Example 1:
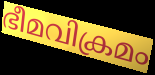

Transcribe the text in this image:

ഭീമവിക്രമം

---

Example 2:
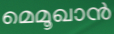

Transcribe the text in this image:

മെമൂഖാൻ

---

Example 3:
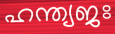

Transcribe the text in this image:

ഹന്ത്യജഃ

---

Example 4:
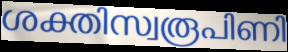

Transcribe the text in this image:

ശക്തിസ്വരൂപിണി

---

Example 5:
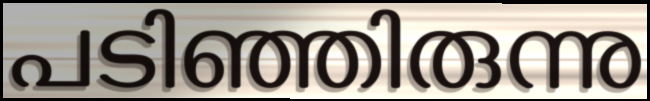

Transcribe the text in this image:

പടിഞ്ഞിരുന്നു